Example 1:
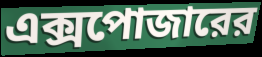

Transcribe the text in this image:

এক্সপোজারের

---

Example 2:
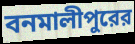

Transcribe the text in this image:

বনমালীপুরের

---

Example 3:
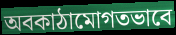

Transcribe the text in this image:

অবকাঠামোগতভাবে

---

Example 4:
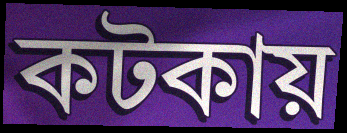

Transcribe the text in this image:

কটকায়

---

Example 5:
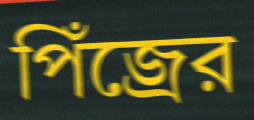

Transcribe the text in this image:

পিঁজ্রের